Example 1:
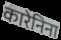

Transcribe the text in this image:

कारेनिना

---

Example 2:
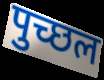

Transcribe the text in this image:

पुच्छल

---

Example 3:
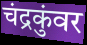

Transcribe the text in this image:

चंद्रकुंवर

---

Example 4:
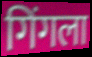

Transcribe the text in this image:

गिंगला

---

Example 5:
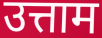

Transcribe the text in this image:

उत्ताम